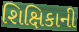
શિક્ષિકાની